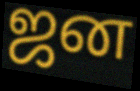
ஜன